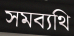
সমব্যথি